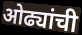
ओढ्यांची